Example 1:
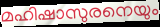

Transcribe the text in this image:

മഹിഷാസുരനെയും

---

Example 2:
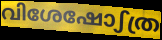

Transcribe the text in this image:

വിശേഷോഽത്ര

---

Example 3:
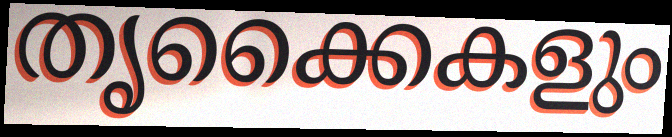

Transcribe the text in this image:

തൃക്കൈകളും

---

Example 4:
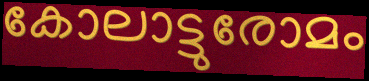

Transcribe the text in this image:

കോലാട്ടുരോമം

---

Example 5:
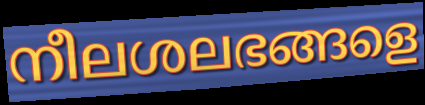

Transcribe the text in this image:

നീലശലഭങ്ങളെ